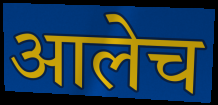
आलेच